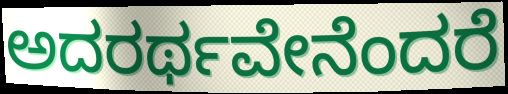
ಅದರರ್ಥವೇನೆಂದರೆ